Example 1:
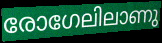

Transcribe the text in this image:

രോഗേലിലാണു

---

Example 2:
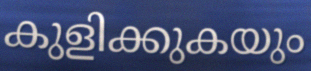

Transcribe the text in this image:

കുളിക്കുകയും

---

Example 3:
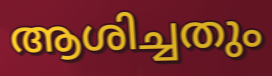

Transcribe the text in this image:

ആശിച്ചതും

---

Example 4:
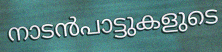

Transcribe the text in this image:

നാടൻപാട്ടുകളുടെ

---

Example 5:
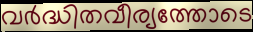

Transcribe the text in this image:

വർദ്ധിതവീര്യത്തോടെ